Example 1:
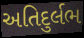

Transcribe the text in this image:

અતિદુર્લભ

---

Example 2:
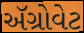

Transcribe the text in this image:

ઍગ્રોવેટ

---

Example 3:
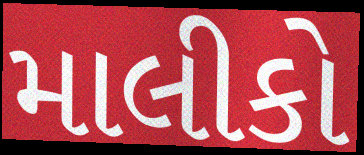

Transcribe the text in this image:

માલીકો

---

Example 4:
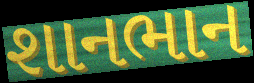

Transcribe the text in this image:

શાનભાન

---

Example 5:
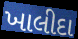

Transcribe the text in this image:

ખાલીદા